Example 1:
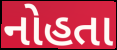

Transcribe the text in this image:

નોહતા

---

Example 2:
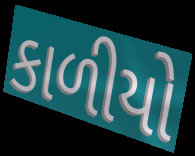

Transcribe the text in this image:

કાળીયો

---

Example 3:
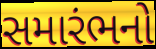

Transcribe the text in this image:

સમારંભનો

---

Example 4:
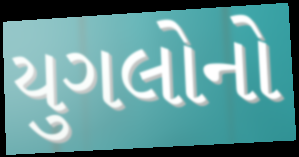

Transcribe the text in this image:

યુગલોનો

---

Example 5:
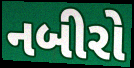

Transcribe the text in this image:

નબીરો